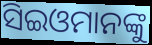
ସିଇଓମାନଙ୍କୁ